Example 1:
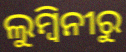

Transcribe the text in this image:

ଲୁମ୍ବିନୀରୁ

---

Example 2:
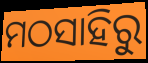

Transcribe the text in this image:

ମଠସାହିରୁ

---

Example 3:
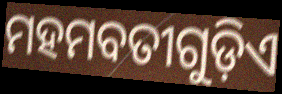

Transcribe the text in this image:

ମହମବତୀଗୁଡ଼ିଏ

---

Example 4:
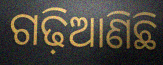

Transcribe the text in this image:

ଗଢ଼ିଆଣିଛି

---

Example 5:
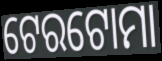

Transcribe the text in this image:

ଟେରଟୋମା